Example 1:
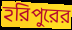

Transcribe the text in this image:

হরিপুরের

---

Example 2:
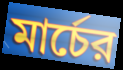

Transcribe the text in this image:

মার্চের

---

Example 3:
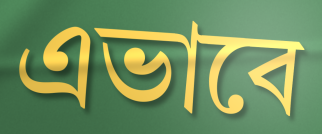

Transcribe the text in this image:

এভাবে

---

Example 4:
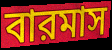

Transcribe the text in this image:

বারমাস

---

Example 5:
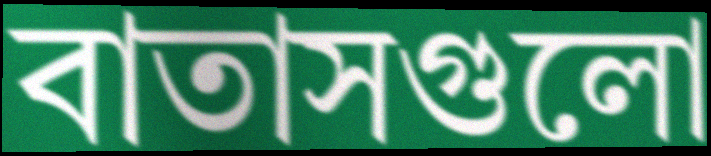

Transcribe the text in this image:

বাতাসগুলো